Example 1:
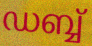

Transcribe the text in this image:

ഡബ്ബ്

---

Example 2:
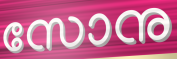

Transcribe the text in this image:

സോനു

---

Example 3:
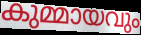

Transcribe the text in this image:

കുമ്മായവും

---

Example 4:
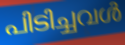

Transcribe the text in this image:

പിടിച്ചവൾ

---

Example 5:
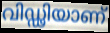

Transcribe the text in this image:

വിഡ്ഢിയാണ്